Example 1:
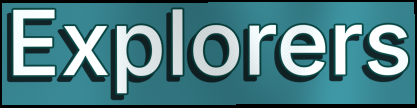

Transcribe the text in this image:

Explorers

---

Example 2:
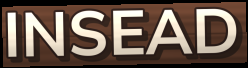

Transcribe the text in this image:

INSEAD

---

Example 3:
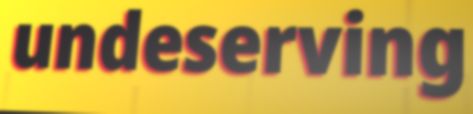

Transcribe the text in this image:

undeserving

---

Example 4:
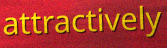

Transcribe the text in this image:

attractively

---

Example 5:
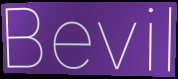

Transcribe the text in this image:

Bevil